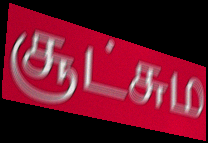
சூட்சும